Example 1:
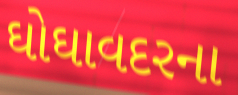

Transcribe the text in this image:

ઘોઘાવદરના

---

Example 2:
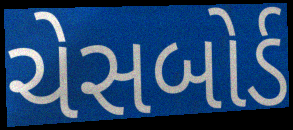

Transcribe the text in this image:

ચેસબોર્ડ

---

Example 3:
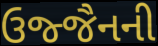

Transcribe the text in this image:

ઉજ્જૈનની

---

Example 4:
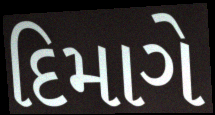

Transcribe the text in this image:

દિમાગે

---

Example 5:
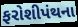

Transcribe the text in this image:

ફરોશીપંથના